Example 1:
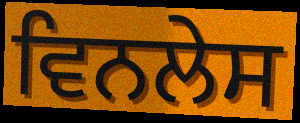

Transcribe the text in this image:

ਵਿਨਲੇਸ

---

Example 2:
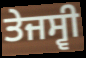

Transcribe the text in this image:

ਤੇਜਸ੍ਵੀ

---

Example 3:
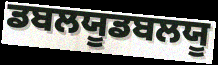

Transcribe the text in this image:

ਡਬਲਯੂਡਬਲਯੂ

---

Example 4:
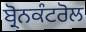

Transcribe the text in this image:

ਬ੍ਰੋਨਕੰਟਰੋਲ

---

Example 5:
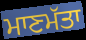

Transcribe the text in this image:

ਮਾਣਮੱਤਾ